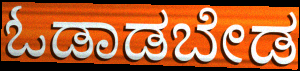
ಓಡಾಡಬೇಡ